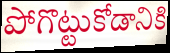
పోగొట్టుకోడానికి